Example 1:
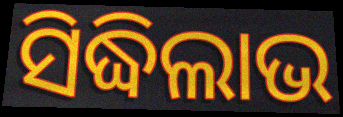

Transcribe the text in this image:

ସିଦ୍ଧିଲାଭ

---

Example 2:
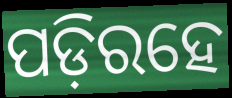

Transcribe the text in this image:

ପଡ଼ିରହେ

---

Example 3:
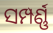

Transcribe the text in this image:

ସମ୍ପର୍ଣ୍ଣ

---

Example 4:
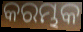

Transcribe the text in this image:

କରମ୍ଭକ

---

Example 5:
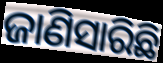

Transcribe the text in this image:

ଜାଣିସାରିଛି